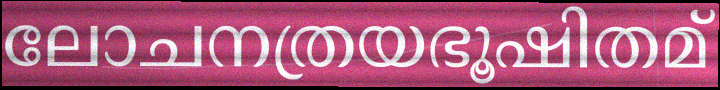
ലോചനത്രയഭൂഷിതമ്